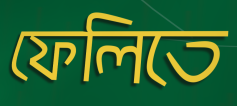
ফেলিতে